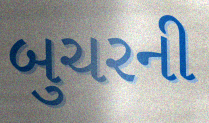
બુચરની